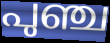
പുഞ്ച